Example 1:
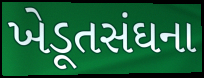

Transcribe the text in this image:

ખેડૂતસંઘના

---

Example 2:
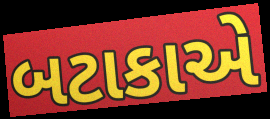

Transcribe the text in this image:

બટાકાએ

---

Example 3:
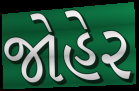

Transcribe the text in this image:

જોહેર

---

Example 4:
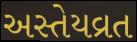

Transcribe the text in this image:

અસ્તેયવ્રત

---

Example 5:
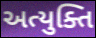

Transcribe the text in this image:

અત્યુક્તિ